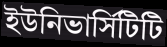
ইউনিভার্সিটিটি